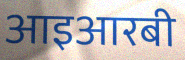
आइआरबी